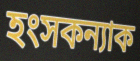
হংসকন্যাক